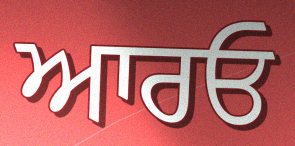
ਆਰਓ